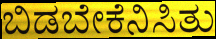
ಬಿಡಬೇಕೆನಿಸಿತು